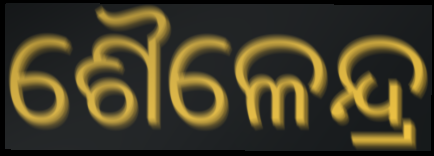
ଶୈଳେନ୍ଦ୍ର